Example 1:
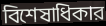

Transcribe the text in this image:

বিশেষাধিকার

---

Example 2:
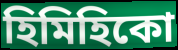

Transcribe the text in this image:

হিমিহিকো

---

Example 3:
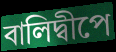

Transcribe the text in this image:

বালিদ্বীপে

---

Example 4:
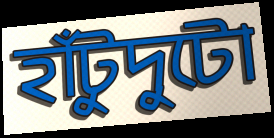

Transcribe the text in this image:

হাঁটুদুটো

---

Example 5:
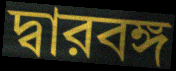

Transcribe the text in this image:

দ্বারবঙ্গ